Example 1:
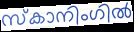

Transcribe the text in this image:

സ്കാനിംഗിൽ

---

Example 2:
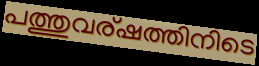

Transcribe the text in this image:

പത്തുവര്ഷത്തിനിടെ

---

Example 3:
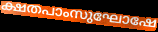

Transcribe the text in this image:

ക്ഷതപാംസുഘോഷേ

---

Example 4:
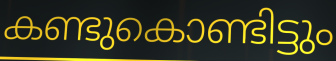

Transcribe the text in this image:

കണ്ടുകൊണ്ടിട്ടും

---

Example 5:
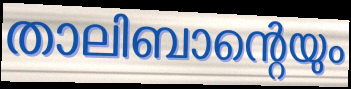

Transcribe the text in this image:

താലിബാന്റെയും